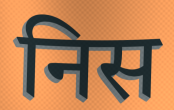
निस